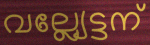
വല്ല്യേട്ടന്